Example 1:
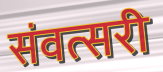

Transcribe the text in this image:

संवत्सरी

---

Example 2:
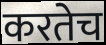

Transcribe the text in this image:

करतेच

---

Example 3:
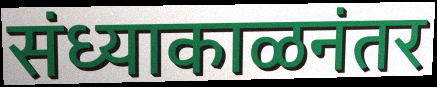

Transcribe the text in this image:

संध्याकाळनंतर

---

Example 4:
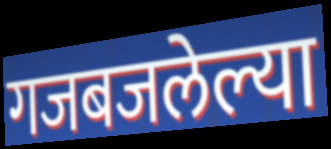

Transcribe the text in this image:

गजबजलेल्या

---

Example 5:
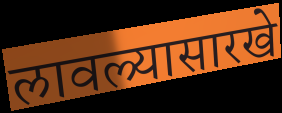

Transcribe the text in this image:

लावल्यासारखे